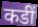
कडीं